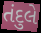
તંદુલે